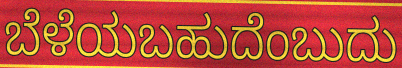
ಬೆಳೆಯಬಹುದೆಂಬುದು